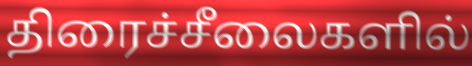
திரைச்சீலைகளில்